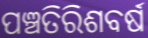
ପଞ୍ଚତିରିଶବର୍ଷ